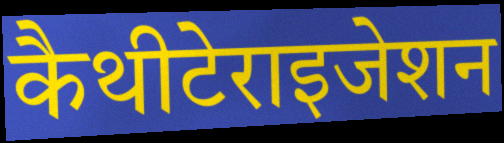
कैथीटेराइजेशन